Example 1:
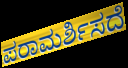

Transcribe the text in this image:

ಪರಾಮರ್ಶಿಸದೆ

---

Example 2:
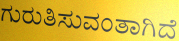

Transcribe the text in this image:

ಗುರುತಿಸುವಂತಾಗಿದೆ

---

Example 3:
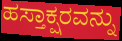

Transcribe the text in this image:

ಹಸ್ತಾಕ್ಷರವನ್ನು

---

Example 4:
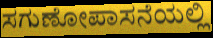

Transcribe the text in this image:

ಸಗುಣೋಪಾಸನೆಯಲ್ಲಿ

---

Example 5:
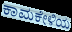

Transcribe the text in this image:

ಕಾಮಕೇಳಿಯ